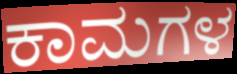
ಕಾಮಗಳ